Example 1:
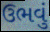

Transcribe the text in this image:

ઉભવું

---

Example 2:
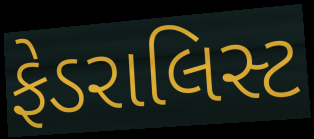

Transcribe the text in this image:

ફેડરાલિસ્ટ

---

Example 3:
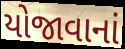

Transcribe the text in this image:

યોજાવાનાં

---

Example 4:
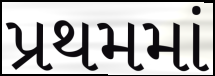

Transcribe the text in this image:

પ્રથમમાં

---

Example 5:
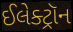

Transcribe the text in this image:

ઈલેક્ટ્રૉન